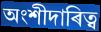
অংশীদাৰিত্ব